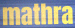
mathra